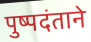
पुष्पदंताने